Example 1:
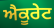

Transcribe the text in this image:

ਐਕੂਰੇਟ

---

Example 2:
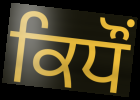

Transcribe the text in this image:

ਕਿਧੌਂ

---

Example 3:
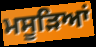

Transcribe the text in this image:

ਮਸੂੜਿਆਂ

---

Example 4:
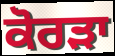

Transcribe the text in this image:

ਕੋਰੜਾ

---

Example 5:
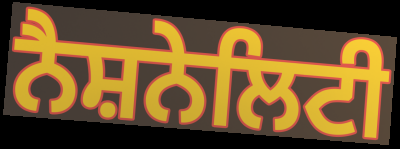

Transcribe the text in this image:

ਨੈਸ਼ਨੇਲਿਟੀ